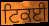
ਟਿਕਈ